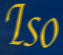
Iso